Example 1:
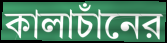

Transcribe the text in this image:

কালাচাঁনের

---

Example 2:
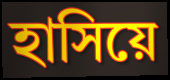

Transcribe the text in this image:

হাসিয়ে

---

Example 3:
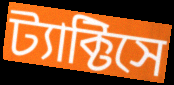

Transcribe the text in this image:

ট্যাক্টিসে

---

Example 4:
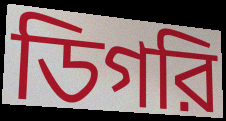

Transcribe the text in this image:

ডিগরি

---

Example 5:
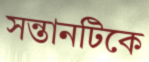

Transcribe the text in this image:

সন্তানটিকে